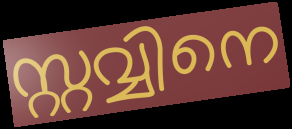
സ്റ്റവ്വിനെ